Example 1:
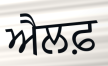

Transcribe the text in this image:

ਐਲਫ਼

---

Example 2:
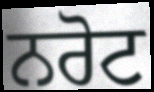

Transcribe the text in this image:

ਨਰੋਟ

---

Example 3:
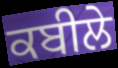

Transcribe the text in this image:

ਕਬੀਲੇ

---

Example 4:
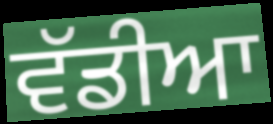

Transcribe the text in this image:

ਵੱਡੀਆ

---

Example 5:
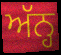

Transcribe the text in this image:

ਅੱਨ੍ਹ